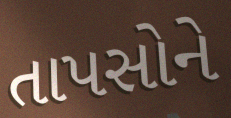
તાપસોને